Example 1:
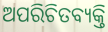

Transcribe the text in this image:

ଅପରିଚିତବ୍ୟକ୍ତି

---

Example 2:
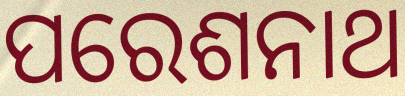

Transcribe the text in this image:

ପରେଶନାଥ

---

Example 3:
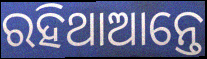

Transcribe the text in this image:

ରହିଥାଆନ୍ତେ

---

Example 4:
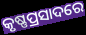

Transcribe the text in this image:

କୃଷ୍ଣପ୍ରସାଦରେ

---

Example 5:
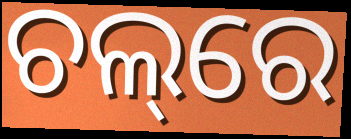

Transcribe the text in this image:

ଚଲ୍‌ରେ